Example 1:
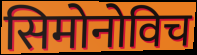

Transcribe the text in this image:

सिमोनोविच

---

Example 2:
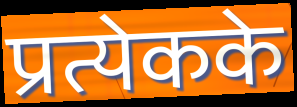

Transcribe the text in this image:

प्रत्येकके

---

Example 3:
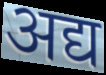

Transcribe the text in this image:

अद्य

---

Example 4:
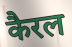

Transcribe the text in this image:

कैरल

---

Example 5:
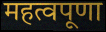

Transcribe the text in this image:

महत्वपूणा